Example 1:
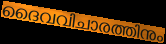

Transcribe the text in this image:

ദൈവവിചാരത്തിനും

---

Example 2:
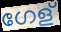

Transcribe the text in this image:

ഗേള്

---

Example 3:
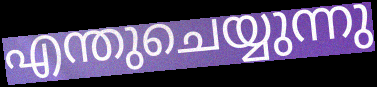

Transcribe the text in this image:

എന്തുചെയ്യുന്നു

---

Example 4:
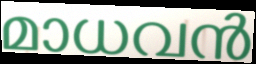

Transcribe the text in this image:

മാധവൻ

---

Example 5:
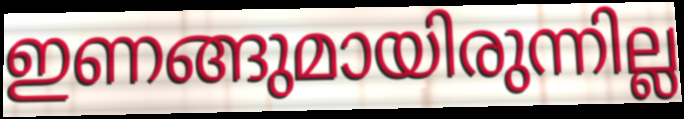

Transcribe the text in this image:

ഇണങ്ങുമായിരുന്നില്ല